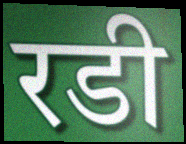
रडी